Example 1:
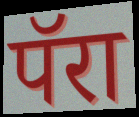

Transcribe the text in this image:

पॅरा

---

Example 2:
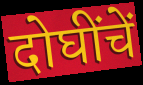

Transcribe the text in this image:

दोघींचें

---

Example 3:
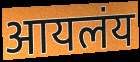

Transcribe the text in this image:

आयलंय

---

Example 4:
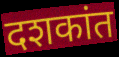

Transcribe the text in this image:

दशकांत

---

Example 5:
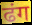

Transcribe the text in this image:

ढंग